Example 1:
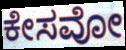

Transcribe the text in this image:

ಕೇಸವೋ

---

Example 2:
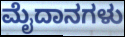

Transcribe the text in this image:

ಮೈದಾನಗಳು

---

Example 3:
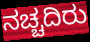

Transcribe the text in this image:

ನಚ್ಚದಿರು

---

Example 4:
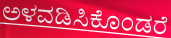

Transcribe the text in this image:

ಅಳವಡಿಸಿಕೊಂಡರೆ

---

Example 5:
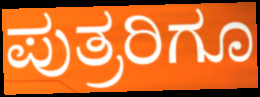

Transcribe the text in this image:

ಪುತ್ರರಿಗೂ